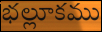
భల్లూకము